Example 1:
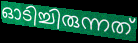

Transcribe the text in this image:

ഓടിച്ചിരുന്നത്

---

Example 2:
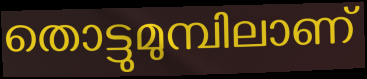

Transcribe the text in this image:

തൊട്ടുമുമ്പിലാണ്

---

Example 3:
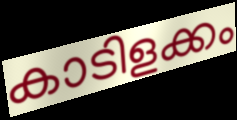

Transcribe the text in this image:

കാടിളക്കം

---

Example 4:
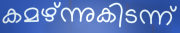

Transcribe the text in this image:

കമഴ്ന്നുകിടന്ന്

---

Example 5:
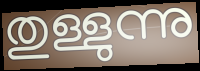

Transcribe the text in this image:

തുള്ളുന്നു